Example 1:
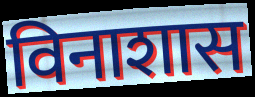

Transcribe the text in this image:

विनाशास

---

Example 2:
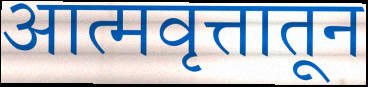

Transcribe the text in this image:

आत्मवृत्तातून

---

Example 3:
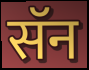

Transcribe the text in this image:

सॅन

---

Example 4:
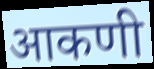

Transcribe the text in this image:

आकणी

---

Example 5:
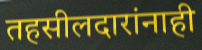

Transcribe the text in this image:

तहसीलदारांनाही